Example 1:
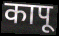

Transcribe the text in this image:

कापू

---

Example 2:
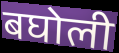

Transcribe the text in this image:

बघोली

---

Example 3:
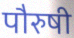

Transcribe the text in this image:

पौरुषी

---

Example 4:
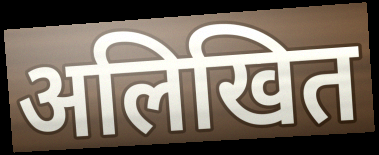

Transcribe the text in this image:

अलिखित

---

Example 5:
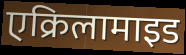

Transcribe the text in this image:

एक्रिलामाइड